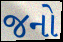
જનો